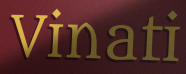
Vinati